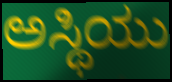
ಅಸ್ಥಿಯು